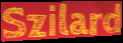
Szilard